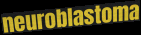
neuroblastoma